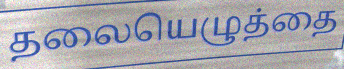
தலையெழுத்தை